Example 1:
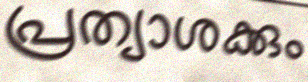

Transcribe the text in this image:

പ്രത്യാശക്കും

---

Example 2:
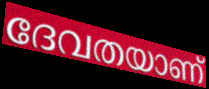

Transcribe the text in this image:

ദേവതയാണ്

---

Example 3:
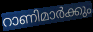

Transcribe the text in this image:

റാണിമാർക്കും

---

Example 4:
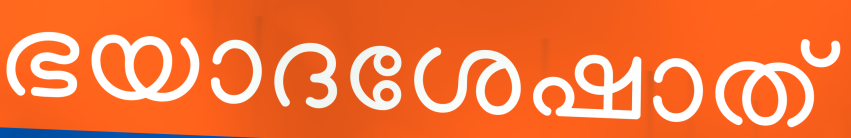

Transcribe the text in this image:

ഭയാദശേഷാത്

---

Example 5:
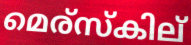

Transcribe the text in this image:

മെര്സ്കില്